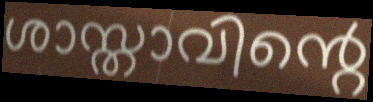
ശാസ്താവിന്റെ